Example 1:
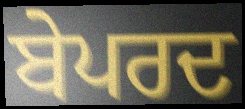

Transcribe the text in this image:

ਬੇਪਰਦ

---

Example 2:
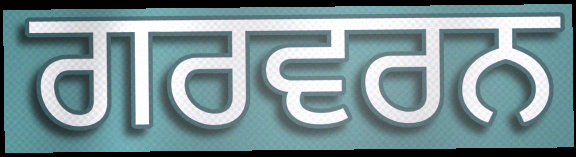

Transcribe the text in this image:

ਗਰਵਰਨ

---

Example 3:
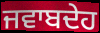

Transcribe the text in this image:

ਜਵਾਬਦੇਹ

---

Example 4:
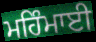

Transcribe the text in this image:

ਮਹਿੰਮਾਈ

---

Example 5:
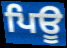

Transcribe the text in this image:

ਪਿਊ